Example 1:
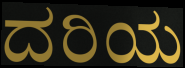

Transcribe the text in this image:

ದರಿಯ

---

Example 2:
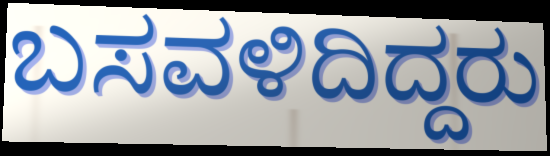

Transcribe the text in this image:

ಬಸವಳಿದಿದ್ದರು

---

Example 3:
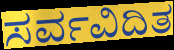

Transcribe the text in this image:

ಸರ್ವವಿದಿತ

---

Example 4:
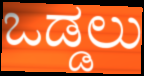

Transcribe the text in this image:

ಒಡ್ಡಲು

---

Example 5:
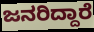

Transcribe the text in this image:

ಜನರಿದ್ದಾರೆ